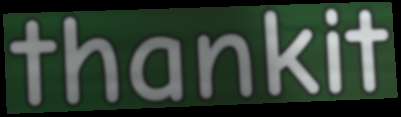
thankit